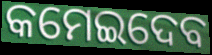
କମେଇଦେବ